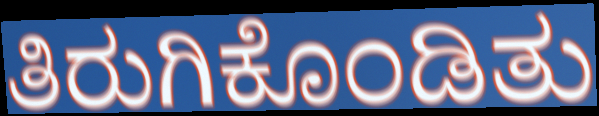
ತಿರುಗಿಕೊಂಡಿತು